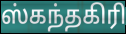
ஸ்கந்தகிரி